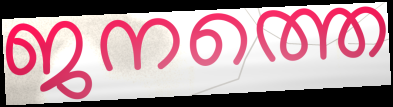
ജനത്തെ